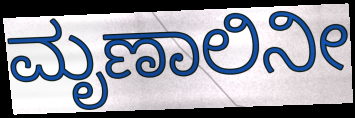
ಮೃಣಾಲಿನೀ